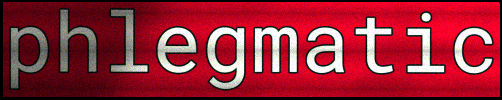
phlegmatic